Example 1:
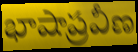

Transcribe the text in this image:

భాషాప్రవీణ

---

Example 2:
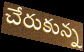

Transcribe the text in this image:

చేరుకున్న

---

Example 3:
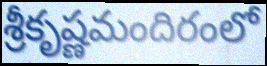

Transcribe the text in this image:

శ్రీకృష్ణమందిరంలో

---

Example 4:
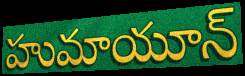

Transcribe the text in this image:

హుమాయూన్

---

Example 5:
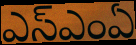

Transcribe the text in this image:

ఎస్ఎంఏ